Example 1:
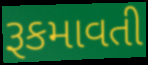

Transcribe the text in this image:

રૂકમાવતી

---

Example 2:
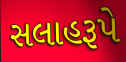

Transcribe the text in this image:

સલાહરૂપે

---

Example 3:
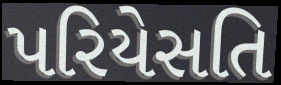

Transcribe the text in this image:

પરિયેસતિ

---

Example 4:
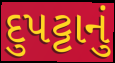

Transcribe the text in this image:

દુપટ્ટાનું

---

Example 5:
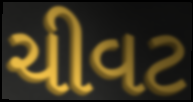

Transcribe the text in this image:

ચીવટ